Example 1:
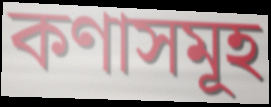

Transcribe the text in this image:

কণাসমূহ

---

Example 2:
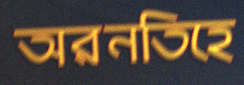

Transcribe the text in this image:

অৱনতিহে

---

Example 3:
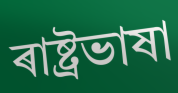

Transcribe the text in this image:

ৰাষ্ট্ৰভাষা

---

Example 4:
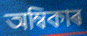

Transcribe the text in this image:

অম্বিকাৰ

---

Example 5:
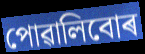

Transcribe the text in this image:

পোৱালিবোৰ